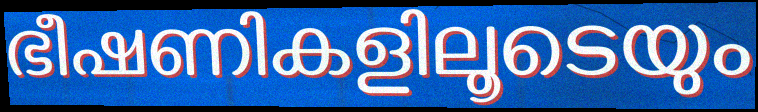
ഭീഷണികളിലൂടെയും